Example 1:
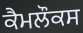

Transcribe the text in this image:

ਕੈਮਲੌਕਸ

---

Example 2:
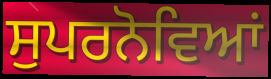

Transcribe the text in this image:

ਸੁਪਰਨੋਵਿਆਂ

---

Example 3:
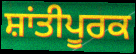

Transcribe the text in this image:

ਸ਼ਾਂਤੀਪੂਰਕ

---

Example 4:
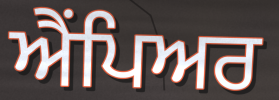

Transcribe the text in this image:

ਐਂਪਿਅਰ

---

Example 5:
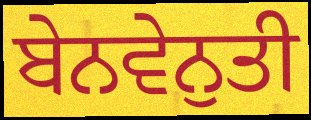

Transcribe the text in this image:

ਬੇਨਵੇਨੁਤੀ